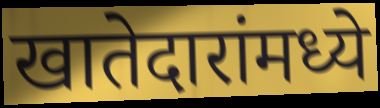
खातेदारांमध्ये